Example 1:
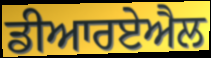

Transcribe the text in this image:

ਡੀਆਰਏਐਲ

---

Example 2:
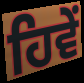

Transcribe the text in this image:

ਹਿਵੇਂ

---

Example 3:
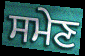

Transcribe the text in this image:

ਸਮੇਣ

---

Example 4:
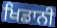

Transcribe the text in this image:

ਖਿਡਾਨੀ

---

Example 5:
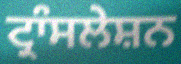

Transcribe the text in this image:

ਟ੍ਰਾੰਸਲੇਸ਼ਨ